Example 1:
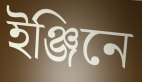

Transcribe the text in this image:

ইঞ্জিনে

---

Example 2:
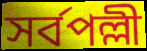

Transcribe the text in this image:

সৰ্বপল্লী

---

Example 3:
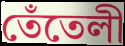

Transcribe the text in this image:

তেঁতেলী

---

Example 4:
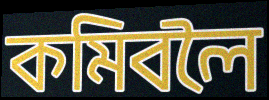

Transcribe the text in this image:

কমিবলৈ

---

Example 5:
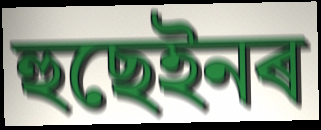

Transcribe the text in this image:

হুছেইনৰ